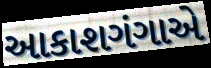
આકાશગંગાએ